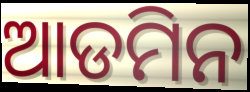
ଆଡମିନ